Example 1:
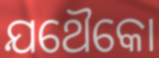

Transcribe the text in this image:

ଯଥୈକୋ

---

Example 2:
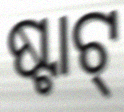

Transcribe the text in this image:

ଷ୍ଟାଟ୍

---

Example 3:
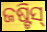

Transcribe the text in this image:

ଜଷ୍ଟିସ୍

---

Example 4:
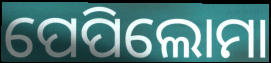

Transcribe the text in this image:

ପେପିଲୋମା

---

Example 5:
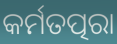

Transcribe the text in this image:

କର୍ମତତ୍ପରା